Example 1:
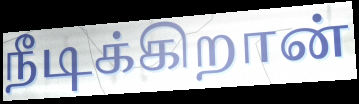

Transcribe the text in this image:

நீடிக்கிறான்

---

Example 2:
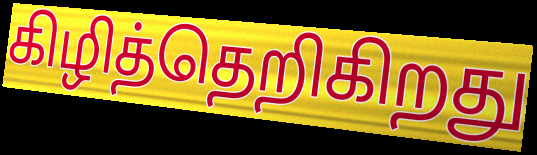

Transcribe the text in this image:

கிழித்தெறிகிறது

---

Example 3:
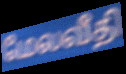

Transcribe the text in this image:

மேலவீதி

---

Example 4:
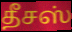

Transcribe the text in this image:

தீசஸ்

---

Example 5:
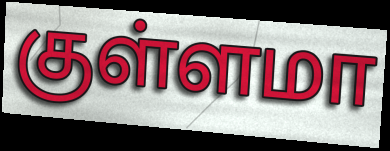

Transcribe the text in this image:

குள்ளமா